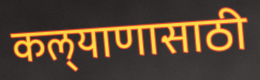
कल्याणासाठी